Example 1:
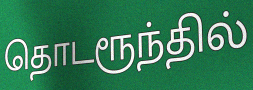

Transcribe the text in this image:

தொடரூந்தில்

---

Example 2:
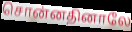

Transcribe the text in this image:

சொன்னதினாலே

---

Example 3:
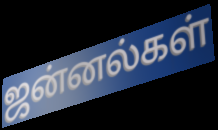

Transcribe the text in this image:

ஜன்னல்கள்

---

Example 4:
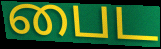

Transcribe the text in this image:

பைட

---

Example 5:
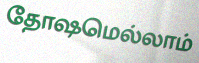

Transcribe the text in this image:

தோஷமெல்லாம்